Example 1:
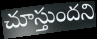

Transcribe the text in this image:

చూస్తుందని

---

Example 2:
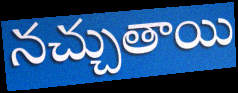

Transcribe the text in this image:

నచ్చుతాయి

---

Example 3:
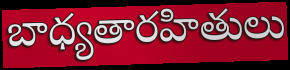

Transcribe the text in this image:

బాధ్యతారహితులు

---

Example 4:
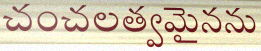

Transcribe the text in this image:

చంచలత్వమైనను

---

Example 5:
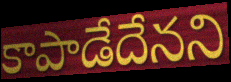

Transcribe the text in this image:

కాపాడేదేనని